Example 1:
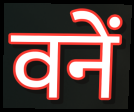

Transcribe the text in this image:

वनें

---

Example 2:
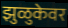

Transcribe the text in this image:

झुळुकेवर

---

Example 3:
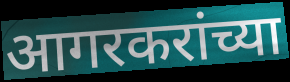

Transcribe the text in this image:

आगरकरांच्या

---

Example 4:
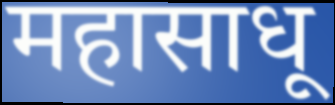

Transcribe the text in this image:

महासाधू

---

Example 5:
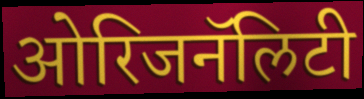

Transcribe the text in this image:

ओरिजनॅलिटी